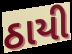
ઠાયી